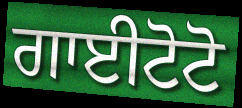
ਗਾਈਟੋਟੋ